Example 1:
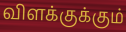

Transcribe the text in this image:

விளக்குக்கும்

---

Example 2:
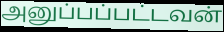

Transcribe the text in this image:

அனுப்பப்பட்டவன்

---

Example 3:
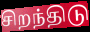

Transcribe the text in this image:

சிறந்திடு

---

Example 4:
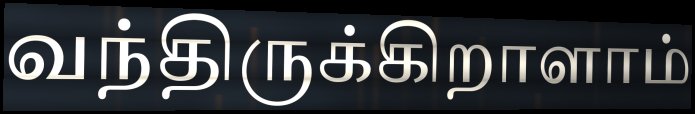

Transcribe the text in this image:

வந்திருக்கிறாளாம்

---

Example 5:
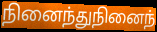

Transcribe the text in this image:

நினைந்துநினைந்